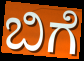
ಬಿಗೆ